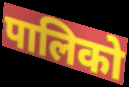
पालिको